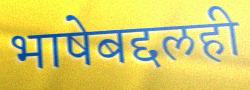
भाषेबद्दलही